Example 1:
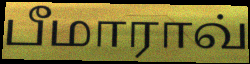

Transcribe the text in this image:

பீமாராவ்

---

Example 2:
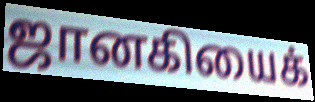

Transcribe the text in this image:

ஜானகியைக்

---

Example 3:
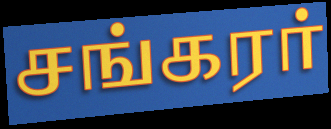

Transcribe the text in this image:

சங்கரர்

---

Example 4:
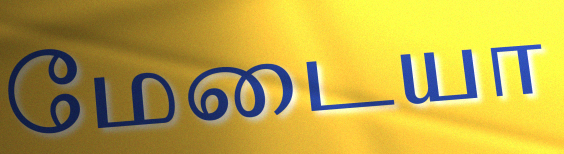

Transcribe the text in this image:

மேடையா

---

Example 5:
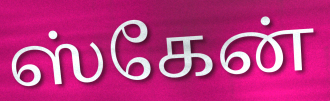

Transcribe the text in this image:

ஸ்கேன்